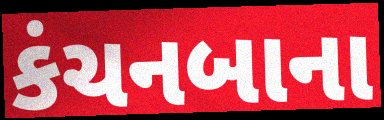
કંચનબાના